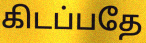
கிடப்பதே